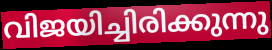
വിജയിച്ചിരിക്കുന്നു